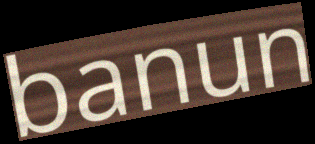
banun